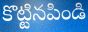
కొట్టినపిండి